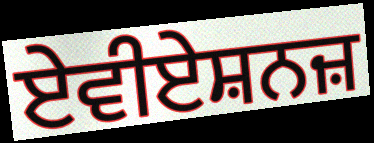
ਏਵੀਏਸ਼ਨਜ਼